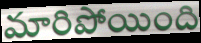
మారిపోయింది